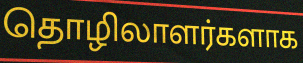
தொழிலாளர்களாக